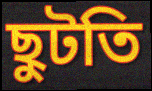
ছুটতি